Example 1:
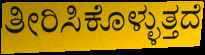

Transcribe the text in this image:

ತೀರಿಸಿಕೊಳ್ಳುತ್ತದೆ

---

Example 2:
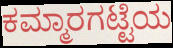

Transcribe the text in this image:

ಕಮ್ಮಾರಗಟ್ಟೆಯ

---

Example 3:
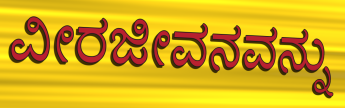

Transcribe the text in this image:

ವೀರಜೀವನವನ್ನು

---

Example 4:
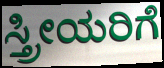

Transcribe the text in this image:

ಸ್ತ್ರೀಯರಿಗೆ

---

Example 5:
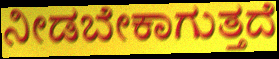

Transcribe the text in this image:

ನೀಡಬೇಕಾಗುತ್ತದೆ